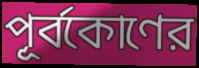
পূর্বকোণের